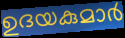
ഉദയകുമാർ